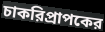
চাকরিপ্রাপকের